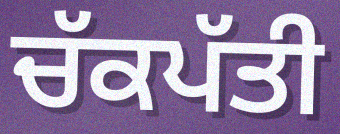
ਚੱਕਪੱਤੀ